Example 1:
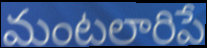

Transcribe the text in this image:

మంటలారిపే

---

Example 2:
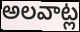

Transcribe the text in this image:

అలవాట్ల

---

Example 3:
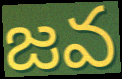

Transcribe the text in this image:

జవ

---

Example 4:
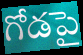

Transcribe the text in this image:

గోడపై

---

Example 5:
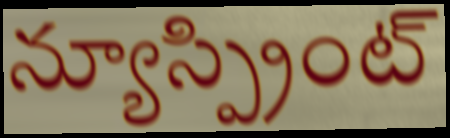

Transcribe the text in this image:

న్యూస్ప్రింట్